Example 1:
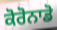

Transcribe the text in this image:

ਕੋਰੋਨਾਡੋ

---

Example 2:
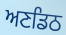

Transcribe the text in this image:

ਅਣਡਿਠ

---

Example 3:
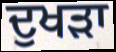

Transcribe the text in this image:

ਦੁਖੜਾ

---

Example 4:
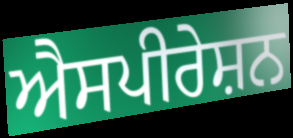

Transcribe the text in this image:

ਐਸਪੀਰੇਸ਼ਨ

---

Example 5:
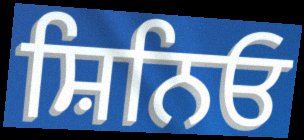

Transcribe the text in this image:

ਸ਼ਿਨਿਓ